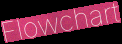
Flowchart